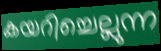
കയറിച്ചെല്ലുന്ന